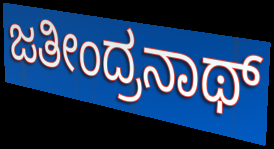
ಜತೀಂದ್ರನಾಥ್